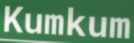
Kumkum